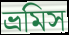
ভ্রমিস